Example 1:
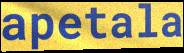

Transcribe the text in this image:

apetala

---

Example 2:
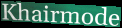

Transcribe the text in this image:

Khairmode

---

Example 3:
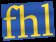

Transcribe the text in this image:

fhl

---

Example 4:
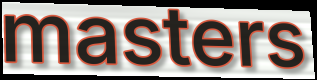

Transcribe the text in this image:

masters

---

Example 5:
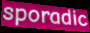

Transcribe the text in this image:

sporadic